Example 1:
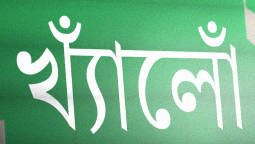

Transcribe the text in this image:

খ্যাঁলোঁ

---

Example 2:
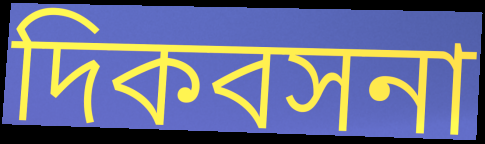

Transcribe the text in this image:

দিকবসনা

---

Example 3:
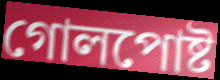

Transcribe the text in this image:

গোলপোষ্ট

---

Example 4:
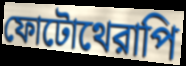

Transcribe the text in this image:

ফোটোথেরাপি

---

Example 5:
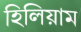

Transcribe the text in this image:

হিলিয়াম